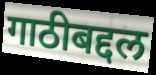
गाठीबद्दल